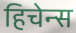
हिचेन्स